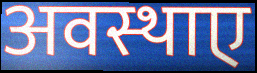
अवस्थाए